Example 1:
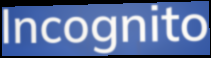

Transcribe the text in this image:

Incognito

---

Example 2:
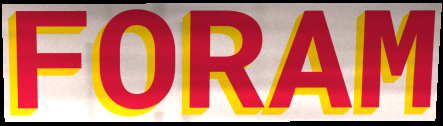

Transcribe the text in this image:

FORAM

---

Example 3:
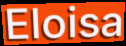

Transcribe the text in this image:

Eloisa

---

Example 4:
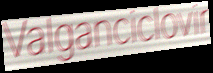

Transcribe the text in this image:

Valganciclovir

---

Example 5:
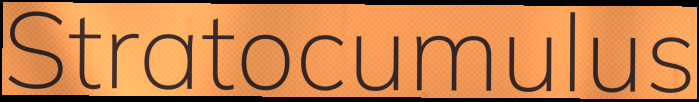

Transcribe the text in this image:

Stratocumulus